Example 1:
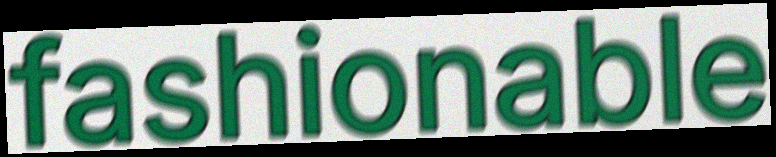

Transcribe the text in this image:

fashionable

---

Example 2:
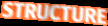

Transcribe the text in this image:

STRUCTURE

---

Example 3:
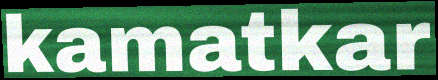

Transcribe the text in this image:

kamatkar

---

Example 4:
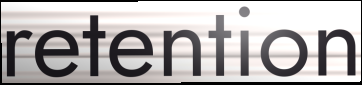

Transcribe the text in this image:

retention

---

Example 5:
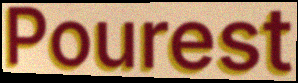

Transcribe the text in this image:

Pourest